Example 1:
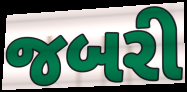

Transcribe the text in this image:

જબરી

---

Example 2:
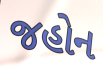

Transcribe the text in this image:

જહોન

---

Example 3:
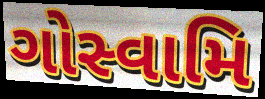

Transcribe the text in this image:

ગોસ્વામિ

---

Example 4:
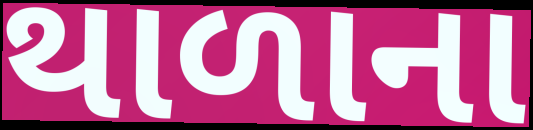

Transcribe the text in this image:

થાળાના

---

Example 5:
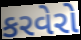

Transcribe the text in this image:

કરવેરો